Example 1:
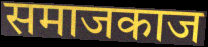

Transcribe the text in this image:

समाजकाज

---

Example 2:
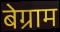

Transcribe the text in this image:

बेग्राम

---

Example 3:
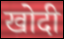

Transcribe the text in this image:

खोदी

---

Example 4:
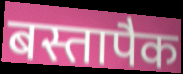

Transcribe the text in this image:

बस्तापैक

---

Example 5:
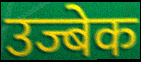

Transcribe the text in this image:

उज्बेक